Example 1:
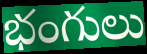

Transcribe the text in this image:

భంగులు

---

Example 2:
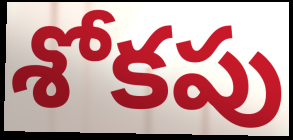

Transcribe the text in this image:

శోకపు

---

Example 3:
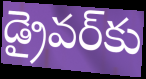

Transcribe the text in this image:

డ్రైవర్‌కు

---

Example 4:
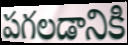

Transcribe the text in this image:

పగలడానికి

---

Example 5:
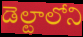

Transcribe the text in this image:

డెల్టాలోని